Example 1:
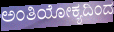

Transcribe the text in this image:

ಅಂತಿಯೋಕ್ಯದಿಂದ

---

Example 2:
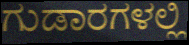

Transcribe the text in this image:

ಗುಡಾರಗಳಲ್ಲಿ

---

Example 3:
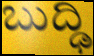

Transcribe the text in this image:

ಬುದ್ಢಿ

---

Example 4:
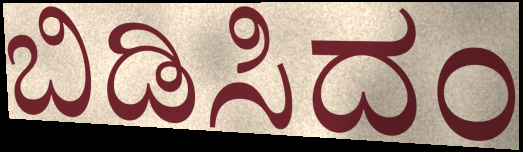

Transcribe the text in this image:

ಬಿಡಿಸಿದಂ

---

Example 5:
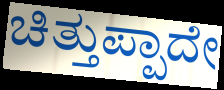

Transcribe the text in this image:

ಚಿತ್ತುಪ್ಪಾದೇ